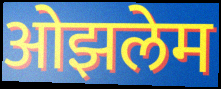
ओझलेम